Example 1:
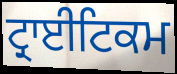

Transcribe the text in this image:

ਟ੍ਰਾਈਟਿਕਮ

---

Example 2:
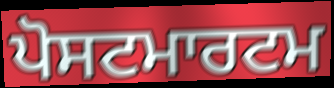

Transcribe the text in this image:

ਪੋਸਟਮਾਰਟਮ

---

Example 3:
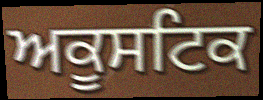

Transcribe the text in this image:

ਅਕੂਸਟਿਕ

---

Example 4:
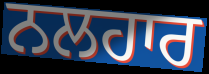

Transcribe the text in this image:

ਨਲਹਾਰ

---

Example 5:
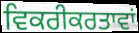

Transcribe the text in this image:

ਵਿਕਰੀਕਰਤਾਵਾਂ